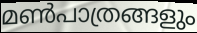
മൺപാത്രങ്ങളും